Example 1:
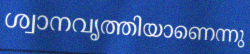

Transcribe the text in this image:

ശ്വാനവൃത്തിയാണെന്നു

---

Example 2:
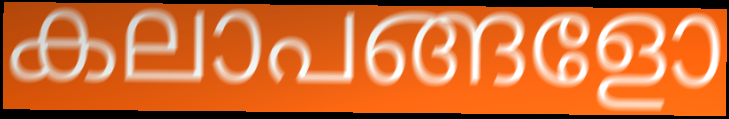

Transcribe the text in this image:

കലാപങ്ങളോ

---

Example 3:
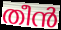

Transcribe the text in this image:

തീൻ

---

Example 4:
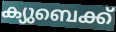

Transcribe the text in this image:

ക്യുബെക്ക്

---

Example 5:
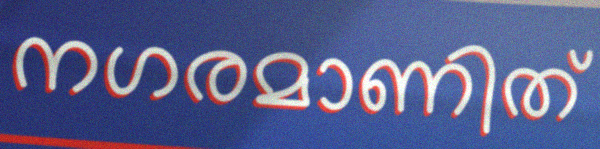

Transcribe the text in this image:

നഗരമാണിത്